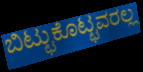
ಬಿಟ್ಟುಕೊಟ್ಟವರಲ್ಲ